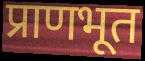
प्राणभूत